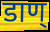
डाण्